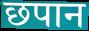
छपान